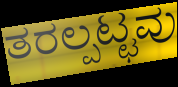
ತರಲ್ಪಟ್ಟವು